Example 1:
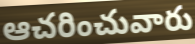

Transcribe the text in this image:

ఆచరించువారు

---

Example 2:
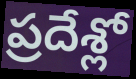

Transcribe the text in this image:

ప్రదేశ్లో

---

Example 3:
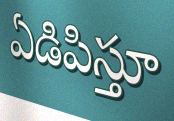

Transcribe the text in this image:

ఏడిపిస్తూ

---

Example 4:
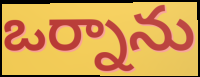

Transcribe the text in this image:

ఒర్నాను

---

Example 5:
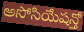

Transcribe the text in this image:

అసోసియేషన్తో